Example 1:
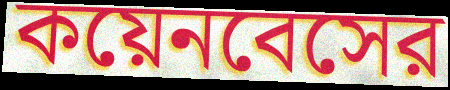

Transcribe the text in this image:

কয়েনবেসের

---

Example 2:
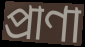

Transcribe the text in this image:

প্রাণা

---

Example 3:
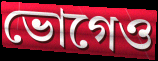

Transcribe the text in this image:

ভোগেও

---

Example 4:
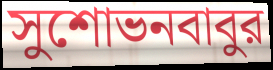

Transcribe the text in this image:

সুশোভনবাবুর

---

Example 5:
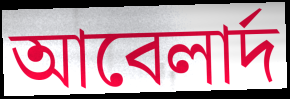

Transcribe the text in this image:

আবেলার্দ